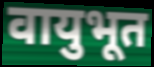
वायुभूत